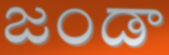
జండా